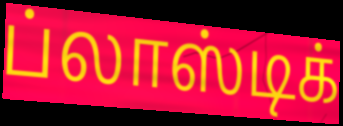
ப்லாஸ்டிக்